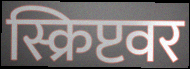
स्क्रिप्टवर